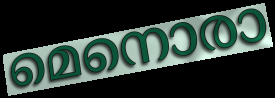
മെനൊരാ